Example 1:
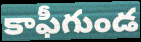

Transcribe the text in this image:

కాఫీగుండ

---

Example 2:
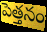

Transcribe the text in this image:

పెత్తనం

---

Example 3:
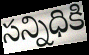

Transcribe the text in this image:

సన్నిధికి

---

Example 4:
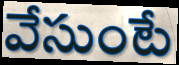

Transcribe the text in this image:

వేసుంటే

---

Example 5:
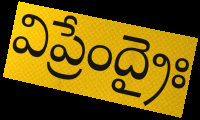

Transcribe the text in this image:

విప్రేంద్రైః